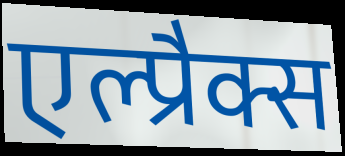
एल्प्रैक्स